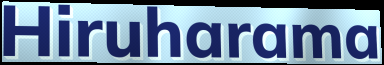
Hiruharama